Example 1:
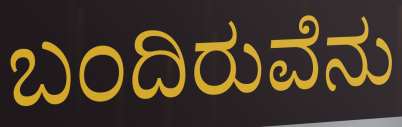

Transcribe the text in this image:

ಬಂದಿರುವೆನು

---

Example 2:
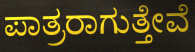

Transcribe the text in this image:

ಪಾತ್ರರಾಗುತ್ತೇವೆ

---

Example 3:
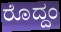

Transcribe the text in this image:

ರೊದ್ದಂ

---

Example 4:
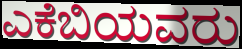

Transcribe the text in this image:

ಎಕೆಬಿಯವರು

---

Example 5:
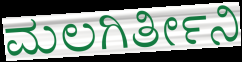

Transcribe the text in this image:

ಮಲಗಿರ್ತೀನಿ